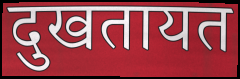
दुखतायत